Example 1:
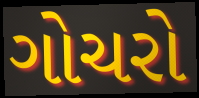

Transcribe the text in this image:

ગોચરો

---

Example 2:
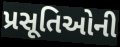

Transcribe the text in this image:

પ્રસૂતિઓની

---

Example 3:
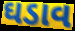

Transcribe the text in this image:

ઘડાવ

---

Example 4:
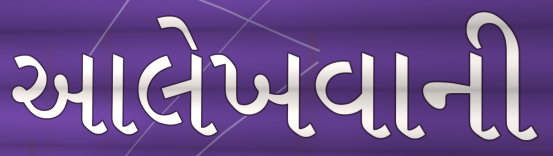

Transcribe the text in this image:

આલેખવાની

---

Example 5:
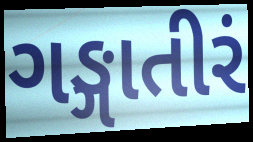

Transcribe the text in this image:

ગઙ્ગાતીરં